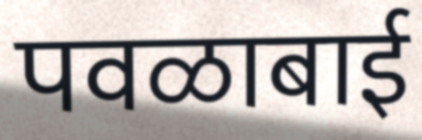
पवळाबाई